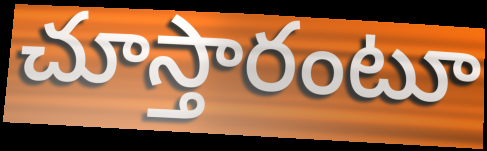
చూస్తారంటూ